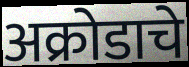
अक्रोडाचे